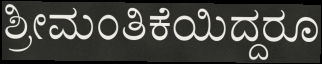
ಶ್ರೀಮಂತಿಕೆಯಿದ್ದರೂ